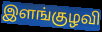
இளங்குழவி